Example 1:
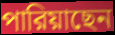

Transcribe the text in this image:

পারিয়াছেন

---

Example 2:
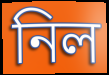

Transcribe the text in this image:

নিল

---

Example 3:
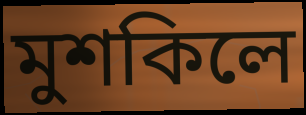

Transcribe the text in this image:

মুশকিলে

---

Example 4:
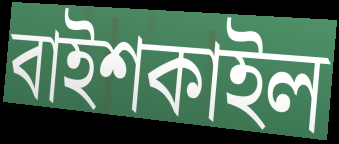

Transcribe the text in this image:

বাইশকাইল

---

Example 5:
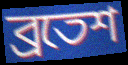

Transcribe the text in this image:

ব্রতেশ